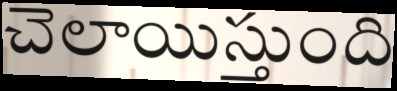
చెలాయిస్తుంది